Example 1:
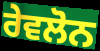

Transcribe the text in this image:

ਰੇਵਲੋਨ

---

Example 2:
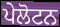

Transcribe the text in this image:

ਪੇਲੋਟਨ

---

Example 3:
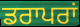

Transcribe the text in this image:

ਡਰਾਪਰਾਂ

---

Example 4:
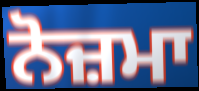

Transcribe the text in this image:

ਨੋਜ਼ਮਾ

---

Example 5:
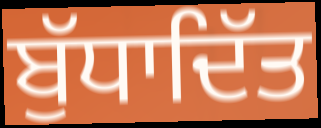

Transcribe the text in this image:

ਬੁੱਧਾਦਿੱਤ